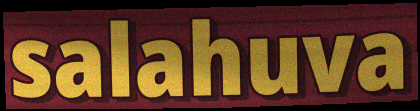
salahuva